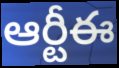
ఆర్టీఈ